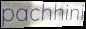
pachhini